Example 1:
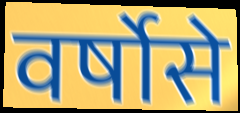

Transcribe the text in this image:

वर्षोसे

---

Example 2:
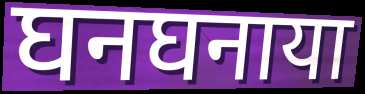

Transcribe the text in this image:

घनघनाया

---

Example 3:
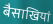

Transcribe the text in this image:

बैसाखियां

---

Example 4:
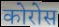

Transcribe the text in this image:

कोरोस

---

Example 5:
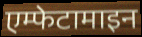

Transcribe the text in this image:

एम्फेटामाइन